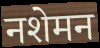
नशेमन